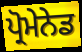
ਪ੍ਰੋਮੇਨੇਡ